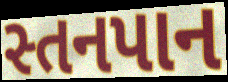
સ્તનપાન